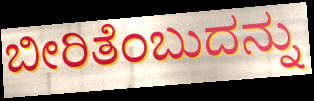
ಬೀರಿತೆಂಬುದನ್ನು